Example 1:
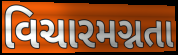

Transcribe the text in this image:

વિચારમગ્નતા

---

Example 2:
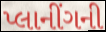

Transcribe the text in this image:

પ્લાનીંગની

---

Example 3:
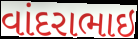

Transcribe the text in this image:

વાંદરાભાઇ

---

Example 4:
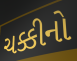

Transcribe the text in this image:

ચક્કીનો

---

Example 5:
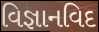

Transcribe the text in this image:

વિજ્ઞાનવિદ